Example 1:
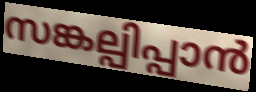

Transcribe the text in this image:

സങ്കല്പിപ്പാൻ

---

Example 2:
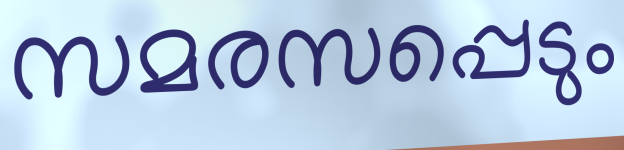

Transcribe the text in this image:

സമരസപ്പെടും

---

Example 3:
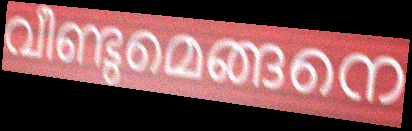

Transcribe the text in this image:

വീണ്ടുമെങ്ങനെ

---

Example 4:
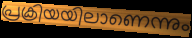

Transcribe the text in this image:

പ്രക്രിയയിലാണെന്നും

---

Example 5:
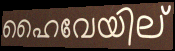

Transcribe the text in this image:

ഹൈവേയില്